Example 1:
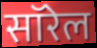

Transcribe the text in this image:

सॉरेल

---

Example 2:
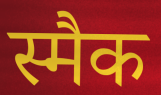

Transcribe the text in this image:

स्मैक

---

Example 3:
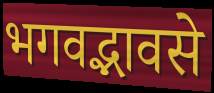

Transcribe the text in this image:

भगवद्भावसे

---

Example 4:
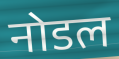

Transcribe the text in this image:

नोडल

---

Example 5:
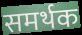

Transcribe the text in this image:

समर्थक